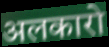
अलकारो